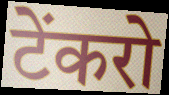
टेंकरो